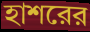
হাশরের